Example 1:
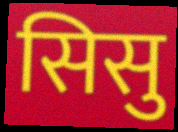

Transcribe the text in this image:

सिसु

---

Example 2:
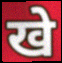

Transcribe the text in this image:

खे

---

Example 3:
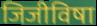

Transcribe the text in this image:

जिजीविषा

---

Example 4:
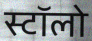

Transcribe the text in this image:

स्टॉलो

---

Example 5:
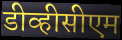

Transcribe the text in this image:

डीव्हीसीएम